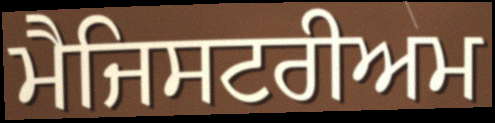
ਮੈਜਿਸਟਰੀਅਮ